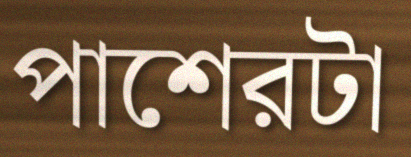
পাশেরটা